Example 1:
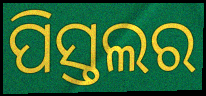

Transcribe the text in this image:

ପିସ୍ତଲର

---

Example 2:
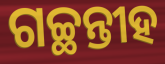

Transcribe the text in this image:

ଗଚ୍ଛନ୍ତୀହ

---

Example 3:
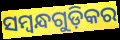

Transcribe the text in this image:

ସମ୍ବନ୍ଧଗୁଡ଼ିକର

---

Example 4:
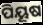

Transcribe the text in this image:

ପିୟୂଷ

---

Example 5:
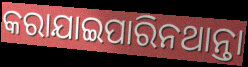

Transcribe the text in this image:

କରାଯାଇପାରିନଥାନ୍ତା